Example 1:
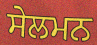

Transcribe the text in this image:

ਸੇਲਮਨ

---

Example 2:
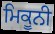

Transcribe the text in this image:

ਮਿਕੂਨੀ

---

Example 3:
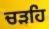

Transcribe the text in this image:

ਚੜਹਿ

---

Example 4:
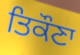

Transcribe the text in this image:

ਤਿਕੌਣਾ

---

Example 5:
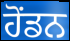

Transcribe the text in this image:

ਹੋਂਡਨ